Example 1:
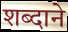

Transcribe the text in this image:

शब्दाने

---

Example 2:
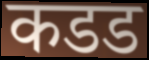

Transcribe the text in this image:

कडड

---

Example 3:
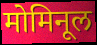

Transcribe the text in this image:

मोमिनूल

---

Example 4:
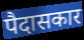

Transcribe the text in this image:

पैदासकार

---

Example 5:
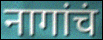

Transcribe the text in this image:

नागांचं